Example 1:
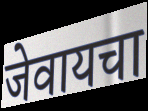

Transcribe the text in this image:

जेवायचा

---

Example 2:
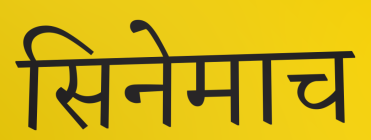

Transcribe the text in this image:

सिनेमाच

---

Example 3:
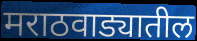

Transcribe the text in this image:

मराठवाड्यातील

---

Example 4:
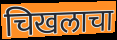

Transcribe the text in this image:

चिखलाचा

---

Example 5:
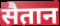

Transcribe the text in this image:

सैतान